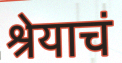
श्रेयाचं